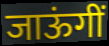
जाऊंगीं